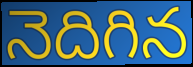
నెదిగిన